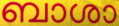
ബാശാ